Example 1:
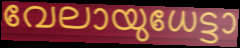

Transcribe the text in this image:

വേലായുധേട്ടാ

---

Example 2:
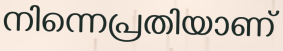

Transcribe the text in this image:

നിന്നെപ്രതിയാണ്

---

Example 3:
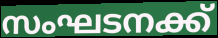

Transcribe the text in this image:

സംഘടനക്ക്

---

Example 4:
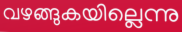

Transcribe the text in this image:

വഴങ്ങുകയില്ലെന്നു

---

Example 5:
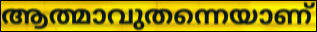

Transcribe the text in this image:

ആത്മാവുതന്നെയാണ്